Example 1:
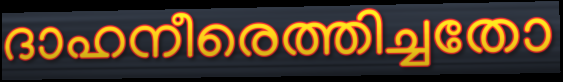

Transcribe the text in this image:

ദാഹനീരെത്തിച്ചതോ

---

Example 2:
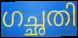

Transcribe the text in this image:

ഗച്ഛതി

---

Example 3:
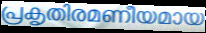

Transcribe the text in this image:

പ്രകൃതിരമണീയമായ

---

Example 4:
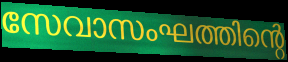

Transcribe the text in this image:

സേവാസംഘത്തിന്റെ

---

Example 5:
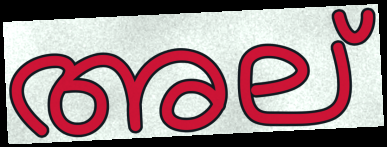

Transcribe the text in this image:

അല്